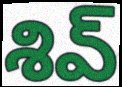
శివ్